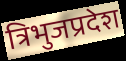
त्रिभुजप्रदेश